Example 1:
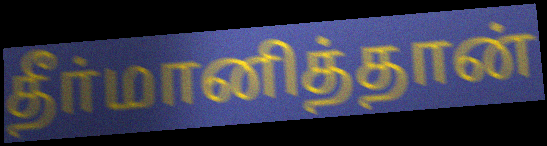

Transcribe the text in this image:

தீர்மானித்தான்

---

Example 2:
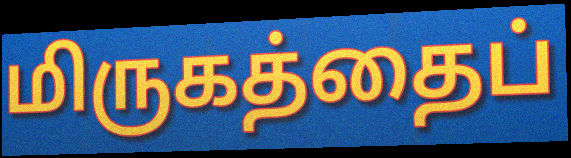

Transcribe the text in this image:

மிருகத்தைப்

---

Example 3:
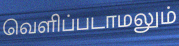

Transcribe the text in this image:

வெளிப்படாமலும்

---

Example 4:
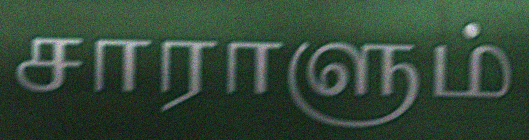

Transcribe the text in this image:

சாராளும்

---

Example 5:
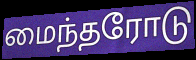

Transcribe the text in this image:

மைந்தரோடு